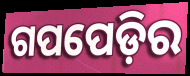
ଗପପେଡ଼ିର